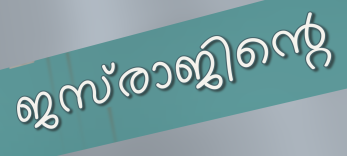
ജസ്‌രാജിന്റെ